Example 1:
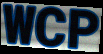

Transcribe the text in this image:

WCP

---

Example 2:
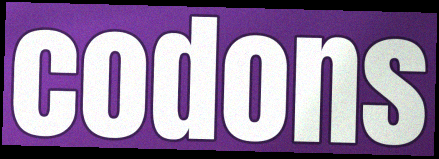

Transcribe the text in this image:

codons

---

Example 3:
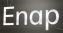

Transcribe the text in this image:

Enap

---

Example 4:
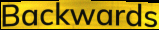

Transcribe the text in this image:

Backwards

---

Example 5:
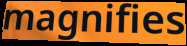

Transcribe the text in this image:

magnifies